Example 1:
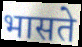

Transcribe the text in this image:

भासते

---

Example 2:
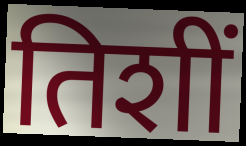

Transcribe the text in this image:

तिशीं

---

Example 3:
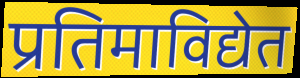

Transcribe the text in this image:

प्रतिमाविद्येत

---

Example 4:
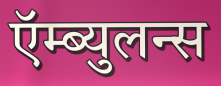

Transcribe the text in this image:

ऍम्ब्युलन्स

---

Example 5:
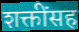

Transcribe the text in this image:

शक्तींसह